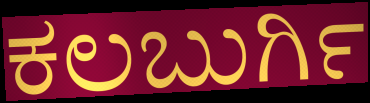
ಕಲಬುರ್ಗಿ